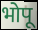
भोपू